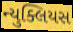
ન્યુક્લિયસ